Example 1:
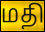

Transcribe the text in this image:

மதி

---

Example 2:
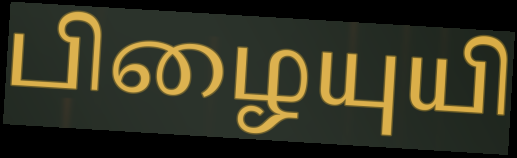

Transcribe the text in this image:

பிழையுயி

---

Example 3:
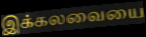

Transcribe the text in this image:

இக்கலவையை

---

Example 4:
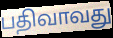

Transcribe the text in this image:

பதிவாவது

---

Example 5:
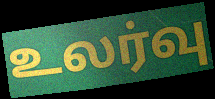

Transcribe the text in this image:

உலர்வு